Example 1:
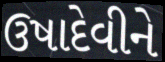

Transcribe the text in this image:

ઉષાદેવીને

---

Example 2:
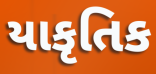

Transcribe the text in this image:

યાકૃતિક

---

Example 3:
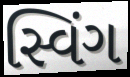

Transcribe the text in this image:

સ્વિંગ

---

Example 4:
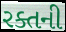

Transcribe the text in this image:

રક્તની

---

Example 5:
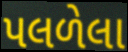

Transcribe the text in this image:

પલળેલા